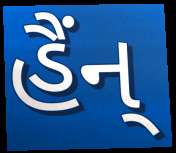
હૈંન્